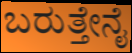
ಬರುತ್ತೇನೈ